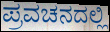
ಪ್ರವಚನದಲ್ಲಿ